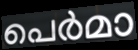
പെർമാ